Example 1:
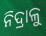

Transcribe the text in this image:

ନିଦ୍ରାଳୁ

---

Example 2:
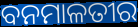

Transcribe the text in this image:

ବନମାଳତୀର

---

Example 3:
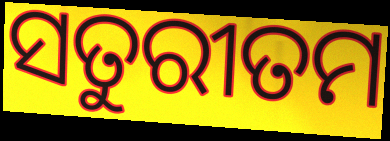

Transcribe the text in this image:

ସତୁରୀତମ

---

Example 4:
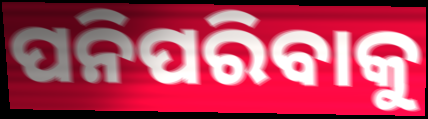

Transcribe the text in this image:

ପନିପରିବାକୁ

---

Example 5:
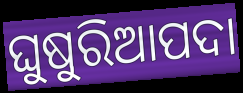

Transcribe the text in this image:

ଘୁଷୁରିଆପଦା